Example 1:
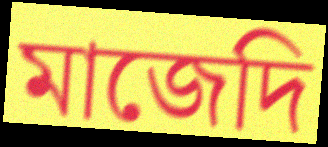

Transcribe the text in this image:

মাজেদি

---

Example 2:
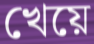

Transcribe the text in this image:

খেয়ে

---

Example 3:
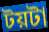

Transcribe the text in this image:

টয়টা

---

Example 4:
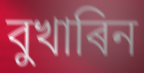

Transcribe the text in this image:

বুখাৰিন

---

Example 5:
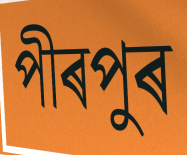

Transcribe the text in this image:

পীৰপুৰ